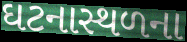
ઘટનાસ્થળના